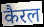
कैरल